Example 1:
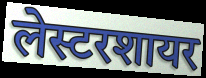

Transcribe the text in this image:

लेस्टरशायर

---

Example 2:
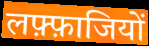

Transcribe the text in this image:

लफ़्फ़ाजियों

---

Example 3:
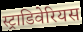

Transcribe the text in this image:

स्ट्राडिवेरियस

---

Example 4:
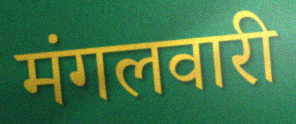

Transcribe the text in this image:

मंगलवारी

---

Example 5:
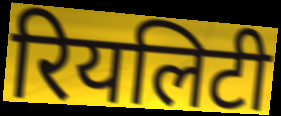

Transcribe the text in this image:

रियलिटी